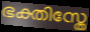
ഭക്തിസ്തേ